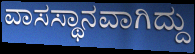
ವಾಸಸ್ಥಾನವಾಗಿದ್ದು